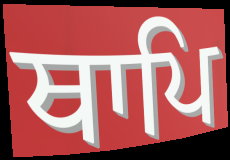
ਥਾਪਿ